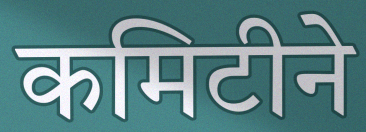
कमिटीने